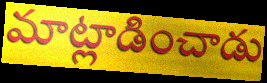
మాట్లాడించాడు